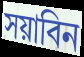
সয়াবিন